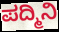
ಪದ್ಮಿನಿ